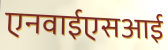
एनवाईएसआई